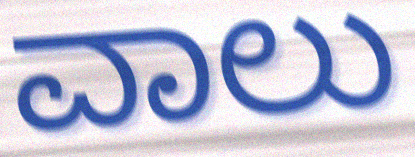
ವಾಲು